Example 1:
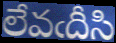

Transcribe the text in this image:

లేవఁదీసి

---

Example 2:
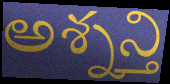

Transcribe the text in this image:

అశ్నన్తి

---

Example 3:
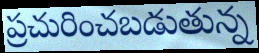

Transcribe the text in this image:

ప్రచురించబడుతున్న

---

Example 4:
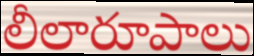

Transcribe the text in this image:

లీలారూపాలు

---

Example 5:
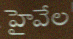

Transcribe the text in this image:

హైవేల